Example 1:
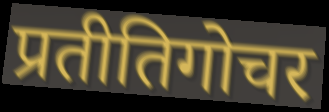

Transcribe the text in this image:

प्रतीतिगोचर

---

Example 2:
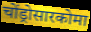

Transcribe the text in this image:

चोंड्रोसारकोमा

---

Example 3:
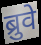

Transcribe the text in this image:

ब्रुवे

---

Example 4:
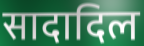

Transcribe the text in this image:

सादादिल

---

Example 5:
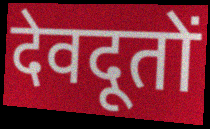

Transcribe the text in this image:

देवदूतों